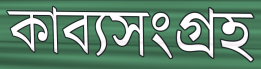
কাব্যসংগ্রহ